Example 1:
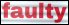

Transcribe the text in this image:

faulty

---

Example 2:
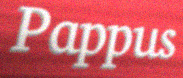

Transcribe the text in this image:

Pappus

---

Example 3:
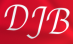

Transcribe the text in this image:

DJB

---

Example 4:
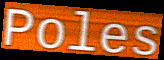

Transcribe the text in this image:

Poles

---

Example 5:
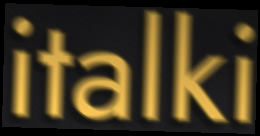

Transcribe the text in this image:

italki